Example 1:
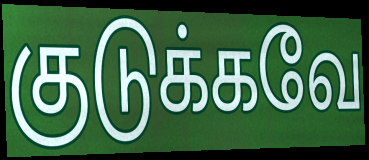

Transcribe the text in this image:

குடுக்கவே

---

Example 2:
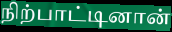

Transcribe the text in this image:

நிற்பாட்டினான்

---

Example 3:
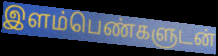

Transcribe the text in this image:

இளம்பெண்களுடன்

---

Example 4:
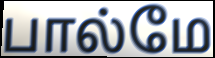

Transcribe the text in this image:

பால்மே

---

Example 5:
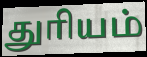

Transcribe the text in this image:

துரியம்